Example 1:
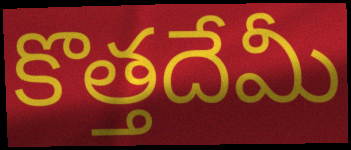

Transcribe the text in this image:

కొత్తదేమీ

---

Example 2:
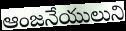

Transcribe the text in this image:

ఆంజనేయులుని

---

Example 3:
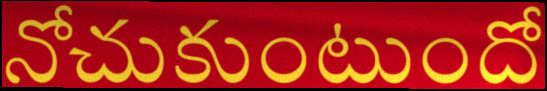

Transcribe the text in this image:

నోచుకుంటుందో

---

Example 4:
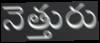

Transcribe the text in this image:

నెత్తురు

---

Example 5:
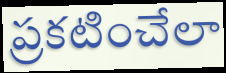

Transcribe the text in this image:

ప్రకటించేలా